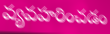
వ్యవహరించడం